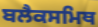
ਬਲੈਕਸਮਿਥ